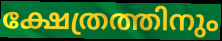
ക്ഷേത്രത്തിനും